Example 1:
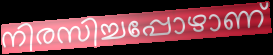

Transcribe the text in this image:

നിരസിച്ചപ്പോഴാണ്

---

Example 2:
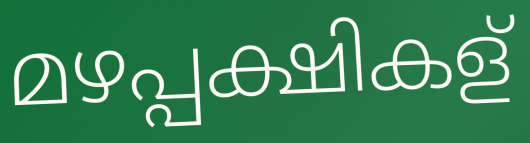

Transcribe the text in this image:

മഴപ്പക്ഷികള്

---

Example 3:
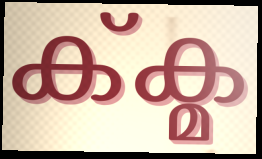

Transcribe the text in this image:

ക്ക്മ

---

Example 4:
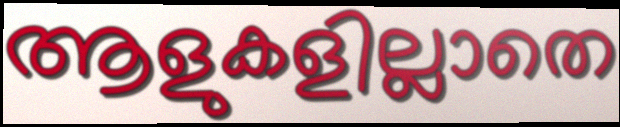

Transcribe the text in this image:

ആളുകളില്ലാതെ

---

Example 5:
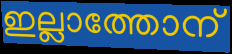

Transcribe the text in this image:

ഇല്ലാത്തോന്